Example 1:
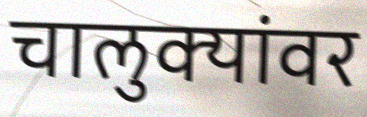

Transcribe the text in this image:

चालुक्यांवर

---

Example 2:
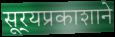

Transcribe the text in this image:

सूर्यप्रकाशाने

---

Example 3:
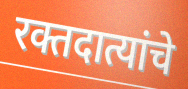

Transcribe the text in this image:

रक्तदात्यांचे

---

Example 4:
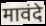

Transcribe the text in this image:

मावंदे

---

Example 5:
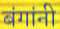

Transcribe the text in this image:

बंगांनी